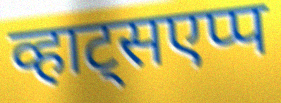
व्हाट्सएप्प